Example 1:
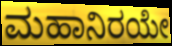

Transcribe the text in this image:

ಮಹಾನಿರಯೇ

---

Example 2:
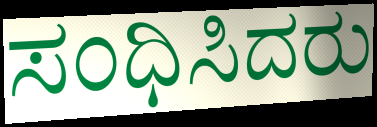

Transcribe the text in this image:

ಸಂಧಿಸಿದರು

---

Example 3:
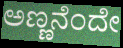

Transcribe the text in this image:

ಅಣ್ಣನೆಂದೇ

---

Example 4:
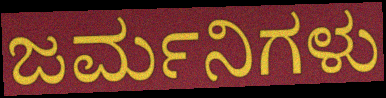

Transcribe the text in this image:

ಜರ್ಮನಿಗಳು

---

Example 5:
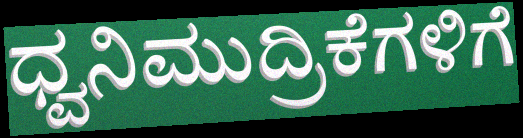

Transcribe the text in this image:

ಧ್ವನಿಮುದ್ರಿಕೆಗಳಿಗೆ